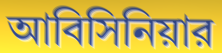
আবিসিনিয়ার